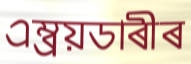
এম্ব্ৰয়ডাৰীৰ